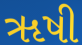
ૠષી